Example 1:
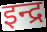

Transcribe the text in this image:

इन्द्र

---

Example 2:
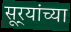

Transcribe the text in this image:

सूर्यांच्या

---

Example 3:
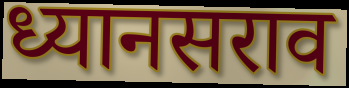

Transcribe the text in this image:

ध्यानसराव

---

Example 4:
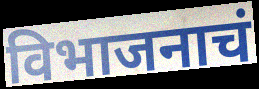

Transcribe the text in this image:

विभाजनाचं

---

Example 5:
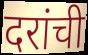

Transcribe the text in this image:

दरांची